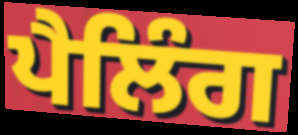
ਪੈਲਿੰਗ